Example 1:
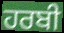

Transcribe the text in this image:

ਹਰਬੀ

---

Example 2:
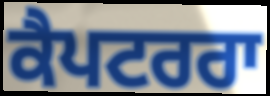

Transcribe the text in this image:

ਕੈਪਟਰਰਾ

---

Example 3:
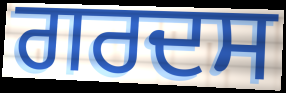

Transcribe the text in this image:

ਗਰਦਸ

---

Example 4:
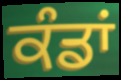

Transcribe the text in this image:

ਕੰਡਾਂ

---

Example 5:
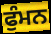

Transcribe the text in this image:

ਫੁੰਮਨ